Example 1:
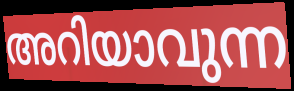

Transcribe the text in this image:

അറിയാവുന്ന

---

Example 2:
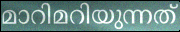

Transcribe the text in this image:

മാറിമറിയുന്നത്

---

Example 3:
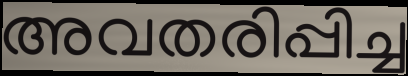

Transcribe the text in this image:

അവതരിപ്പിച്ച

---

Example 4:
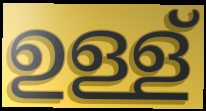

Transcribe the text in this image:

ഉള്ള്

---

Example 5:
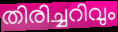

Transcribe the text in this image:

തിരിച്ചറിവും